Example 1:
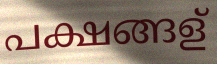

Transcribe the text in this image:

പക്ഷങ്ങള്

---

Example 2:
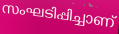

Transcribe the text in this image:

സംഘടിപ്പിച്ചാണ്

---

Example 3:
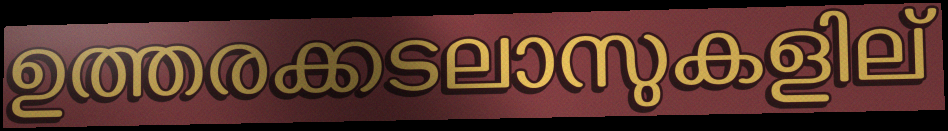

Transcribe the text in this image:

ഉത്തരക്കടലാസുകളില്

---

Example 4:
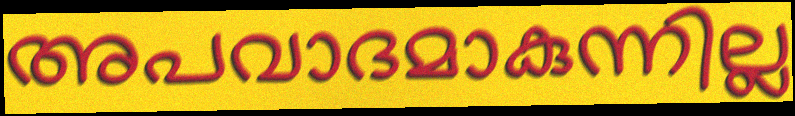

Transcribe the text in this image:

അപവാദമാകുന്നില്ല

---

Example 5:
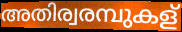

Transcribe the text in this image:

അതിര്വരമ്പുകള്